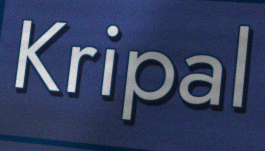
Kripal